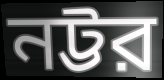
নট্টর